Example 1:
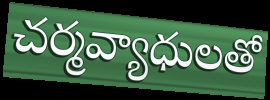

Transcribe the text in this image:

చర్మవ్యాధులతో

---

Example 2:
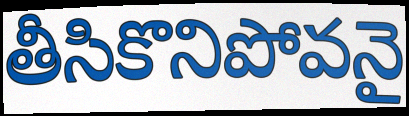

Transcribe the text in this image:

తీసికొనిపోవనై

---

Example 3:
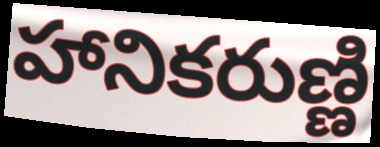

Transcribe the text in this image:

హానికరుణ్ణి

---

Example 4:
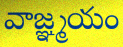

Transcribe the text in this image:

వాజ్ఞ్మయం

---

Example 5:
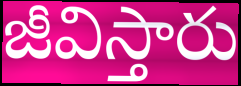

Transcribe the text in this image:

జీవిస్తారు